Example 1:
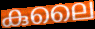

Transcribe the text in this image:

കുലൈ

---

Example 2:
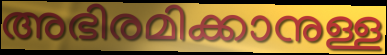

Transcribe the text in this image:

അഭിരമിക്കാനുള്ള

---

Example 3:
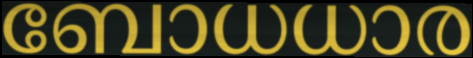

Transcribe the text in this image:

ബോധധാര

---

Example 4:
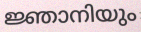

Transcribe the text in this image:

ജ്ഞാനിയും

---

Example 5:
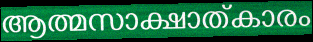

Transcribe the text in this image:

ആത്മസാക്ഷാത്കാരം